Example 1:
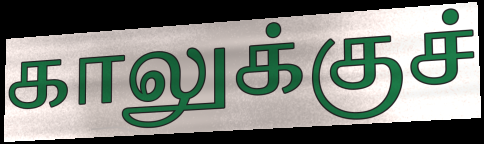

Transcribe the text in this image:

காலுக்குச்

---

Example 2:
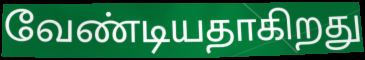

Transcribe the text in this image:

வேண்டியதாகிறது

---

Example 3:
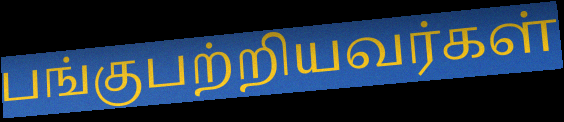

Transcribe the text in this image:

பங்குபற்றியவர்கள்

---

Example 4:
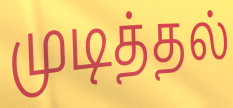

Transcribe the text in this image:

முடித்தல்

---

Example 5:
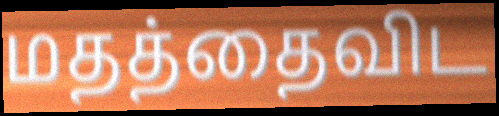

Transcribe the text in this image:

மதத்தைவிட